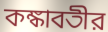
কঙ্কাবতীর